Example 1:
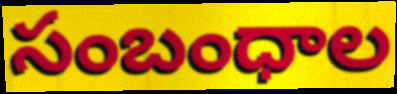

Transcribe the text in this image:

సంబంధాల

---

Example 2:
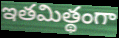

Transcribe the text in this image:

ఇతమిత్థంగా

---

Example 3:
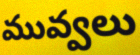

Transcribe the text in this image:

మువ్వలు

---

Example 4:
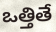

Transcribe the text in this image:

ఒత్తితే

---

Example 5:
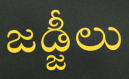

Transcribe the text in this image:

జడ్జీలు